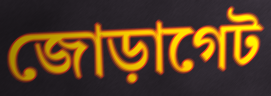
জোড়াগেট